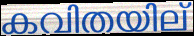
കവിതയില്